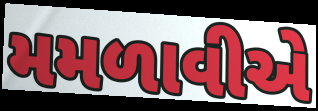
મમળાવીએ